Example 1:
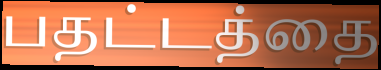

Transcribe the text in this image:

பதட்டத்தை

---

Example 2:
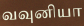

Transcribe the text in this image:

வவுனியா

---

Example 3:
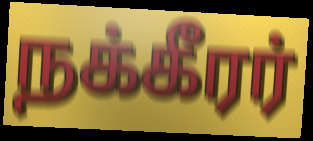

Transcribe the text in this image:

நக்கீரர்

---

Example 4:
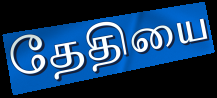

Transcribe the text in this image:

தேதியை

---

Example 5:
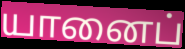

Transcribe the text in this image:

யானைப்